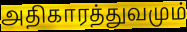
அதிகாரத்துவமும்